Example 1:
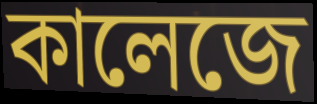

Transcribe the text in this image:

কালেজে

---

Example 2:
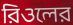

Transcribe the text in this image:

রিওলের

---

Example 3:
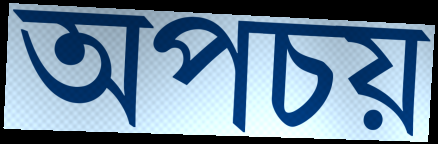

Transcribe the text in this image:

অপচয়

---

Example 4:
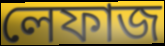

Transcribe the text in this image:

লেফাজ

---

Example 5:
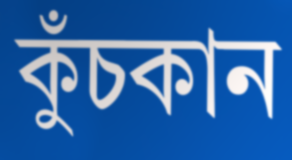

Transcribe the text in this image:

কুঁচকান